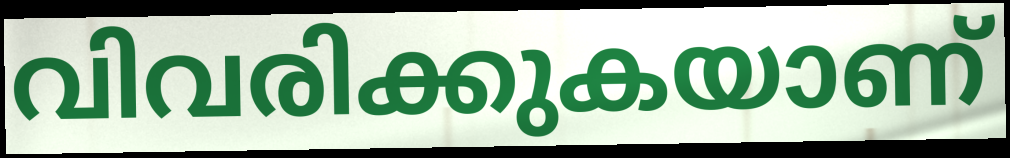
വിവരിക്കുകയാണ്